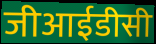
जीआईडीसी